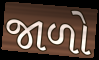
જાળો